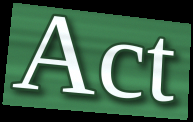
Act